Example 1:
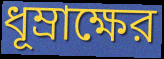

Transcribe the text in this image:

ধূম্রাক্ষের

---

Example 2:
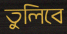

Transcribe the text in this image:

তুলিবে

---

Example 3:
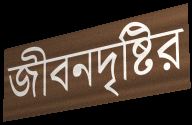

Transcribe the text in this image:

জীবনদৃষ্টির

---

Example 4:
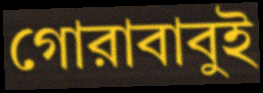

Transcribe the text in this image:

গোরাবাবুই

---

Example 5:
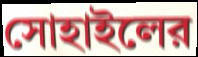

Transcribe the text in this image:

সোহাইলের